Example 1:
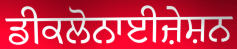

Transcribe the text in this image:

ਡੀਕਲੋਨਾਈਜ਼ੇਸ਼ਨ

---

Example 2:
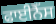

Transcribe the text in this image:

ਫਾਈਨੈੱਸ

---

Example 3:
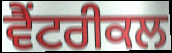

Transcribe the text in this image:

ਵੈਂਟਰੀਕਲ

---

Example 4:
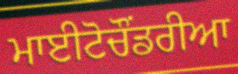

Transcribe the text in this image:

ਮਾਈਟੋਚੌਂਡਰੀਆ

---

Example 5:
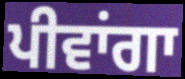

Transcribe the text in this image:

ਪੀਵਾਂਗਾ